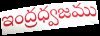
ఇంద్రధ్వజము